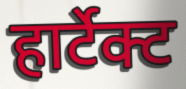
हार्टेक्ट